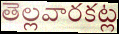
తెల్లవారకట్ల